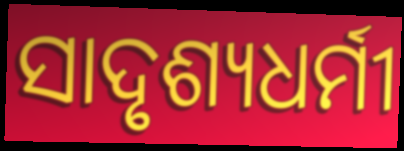
ସାଦୃଶ୍ୟଧର୍ମୀ